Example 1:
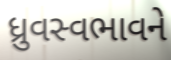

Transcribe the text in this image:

ધ્રુવસ્વભાવને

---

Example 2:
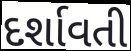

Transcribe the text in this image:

દર્શાવતી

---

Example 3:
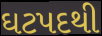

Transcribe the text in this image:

ઘટપદથી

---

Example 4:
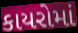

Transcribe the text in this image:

કાયરોમાં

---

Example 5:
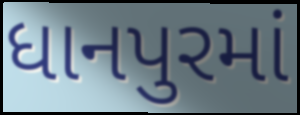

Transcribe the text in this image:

ધાનપુરમાં